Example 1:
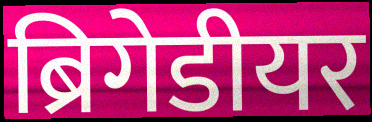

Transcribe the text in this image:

ब्रिगेडीयर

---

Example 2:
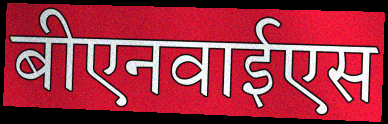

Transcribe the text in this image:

बीएनवाईएस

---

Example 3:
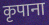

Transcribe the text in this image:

कृपाना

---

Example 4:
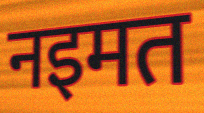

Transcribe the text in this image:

नइमत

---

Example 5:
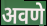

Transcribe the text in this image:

अवणे